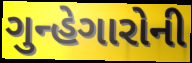
ગુન્હેગારોની